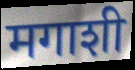
मगाशी